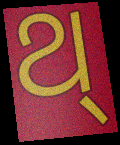
ଥ୍